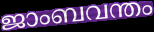
ജാംബവന്തം